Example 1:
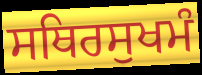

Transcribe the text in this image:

ਸਥਿਰਸੁਖਮੰ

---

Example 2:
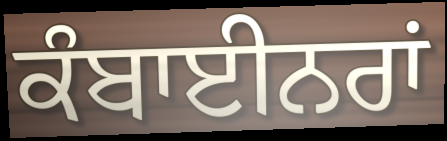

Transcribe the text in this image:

ਕੰਬਾਈਨਰਾਂ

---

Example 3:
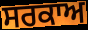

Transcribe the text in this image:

ਸਰਕਾਅ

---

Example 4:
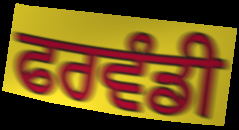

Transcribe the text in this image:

ਫਰਵੰਡੀ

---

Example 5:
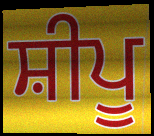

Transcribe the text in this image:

ਸ਼ੀਪੂ